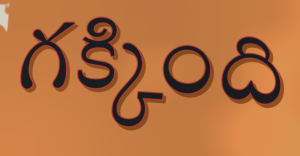
గక్కింది